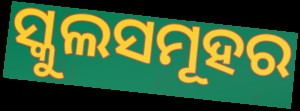
ସ୍କୁଲସମୂହର